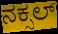
ನಕ್ಸಲ್